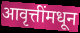
आवृत्तींमधून